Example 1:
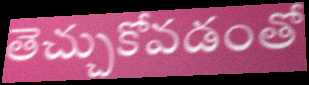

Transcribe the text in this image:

తెచ్చుకోవడంతో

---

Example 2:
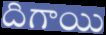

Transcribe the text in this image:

దిగాయి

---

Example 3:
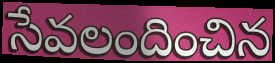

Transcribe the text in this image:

సేవలందించిన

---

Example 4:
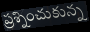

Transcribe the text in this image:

ప్రశ్నించుకున్న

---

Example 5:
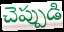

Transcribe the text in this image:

చెప్పుడి